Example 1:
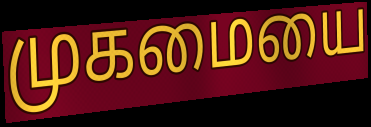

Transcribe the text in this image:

முகமையை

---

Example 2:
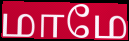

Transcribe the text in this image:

மாமே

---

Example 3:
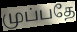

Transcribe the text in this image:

முப்பதே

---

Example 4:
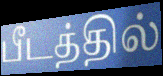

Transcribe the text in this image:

பீடத்தில்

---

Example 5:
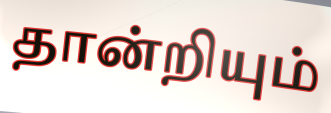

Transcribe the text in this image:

தான்றியும்